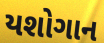
યશોગાન